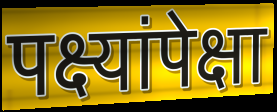
पक्ष्यांपेक्षा